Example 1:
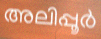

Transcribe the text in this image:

അലിപ്പൂർ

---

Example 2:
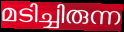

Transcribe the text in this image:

മടിച്ചിരുന്ന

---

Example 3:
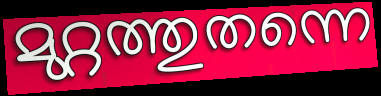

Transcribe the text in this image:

മുറ്റത്തുതന്നെ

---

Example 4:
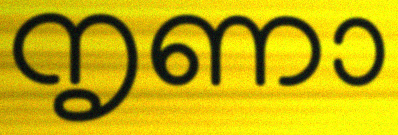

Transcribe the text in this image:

നൃണാ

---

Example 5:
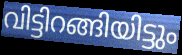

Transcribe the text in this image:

വിട്ടിറങ്ങിയിട്ടും